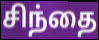
சிந்தை